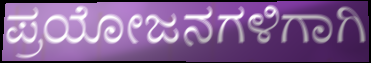
ಪ್ರಯೋಜನಗಳಿಗಾಗಿ